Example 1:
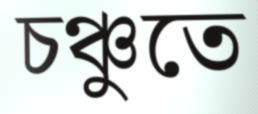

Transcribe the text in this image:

চঞ্চুতে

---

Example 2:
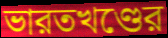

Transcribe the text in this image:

ভারতখণ্ডের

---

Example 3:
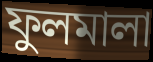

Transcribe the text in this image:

ফুলমালা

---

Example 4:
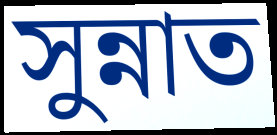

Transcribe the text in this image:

সুন্নাত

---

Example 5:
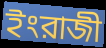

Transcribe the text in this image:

ইংরাজী